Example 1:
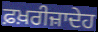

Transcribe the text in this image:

ਫ਼ਖ਼ਰੀਜ਼ਾਦੇਹ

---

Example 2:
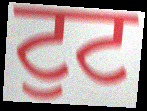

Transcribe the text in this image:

ਟੁਟ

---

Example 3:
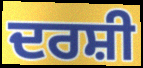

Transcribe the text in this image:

ਦਰਸ਼ੀ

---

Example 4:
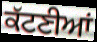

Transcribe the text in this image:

ਕੱਟਣੀਆਂ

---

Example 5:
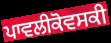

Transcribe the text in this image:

ਪਾਵਲੀਕੋਵਸਕੀ